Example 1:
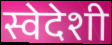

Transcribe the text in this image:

स्वेदेशी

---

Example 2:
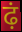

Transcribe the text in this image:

ढ़ं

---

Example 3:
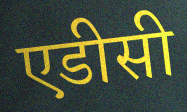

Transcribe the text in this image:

एडीसी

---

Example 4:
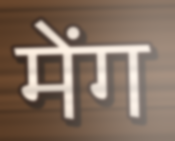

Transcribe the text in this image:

मेंग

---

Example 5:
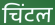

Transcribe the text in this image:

चिंटल